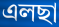
এলছা